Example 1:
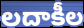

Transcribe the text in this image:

లదాకీల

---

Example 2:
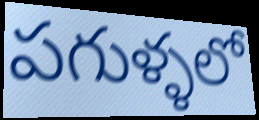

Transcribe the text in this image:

పగుళ్ళలో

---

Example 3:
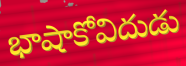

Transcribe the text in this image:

భాషాకోవిదుడు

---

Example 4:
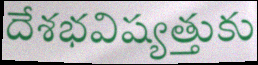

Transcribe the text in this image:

దేశభవిష్యత్తుకు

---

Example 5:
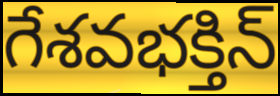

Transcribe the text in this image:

గేశవభక్తిన్